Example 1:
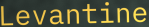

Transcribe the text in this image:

Levantine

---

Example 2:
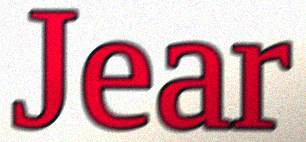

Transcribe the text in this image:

Jear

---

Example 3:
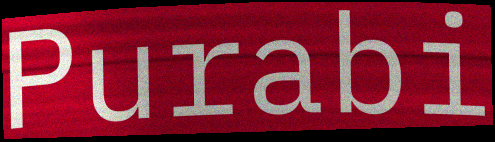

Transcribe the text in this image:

Purabi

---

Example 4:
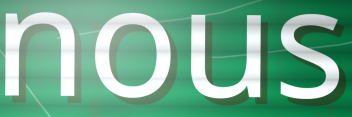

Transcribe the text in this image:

nous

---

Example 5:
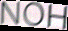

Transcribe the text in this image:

NOH